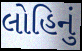
લોહિનું